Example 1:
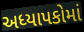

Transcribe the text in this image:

અધ્યાપકોમાં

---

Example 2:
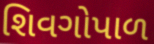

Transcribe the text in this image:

શિવગોપાળ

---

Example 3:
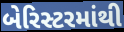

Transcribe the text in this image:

બેરિસ્ટરમાંથી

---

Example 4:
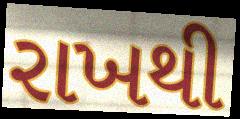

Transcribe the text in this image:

રાખથી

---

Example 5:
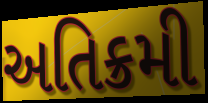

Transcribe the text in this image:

અતિક્રમી